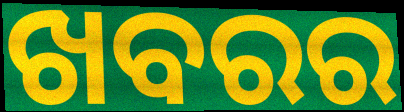
ଖବରର